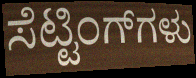
ಸೆಟ್ಟಿಂಗ್‌ಗಳು